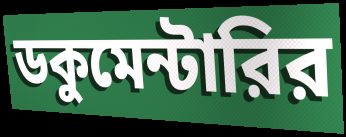
ডকুমেন্টারির